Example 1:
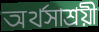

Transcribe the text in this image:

অর্থসাশ্রয়ী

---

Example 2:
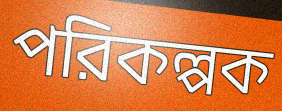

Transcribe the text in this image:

পরিকল্পক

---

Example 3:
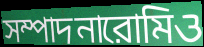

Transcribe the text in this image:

সম্পাদনারোমিও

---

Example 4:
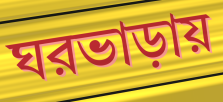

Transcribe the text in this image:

ঘরভাড়ায়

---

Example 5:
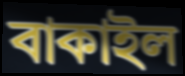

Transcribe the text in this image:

বাকাইল